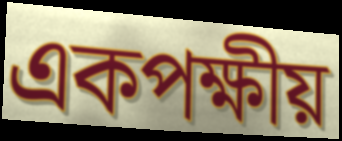
একপক্ষীয়